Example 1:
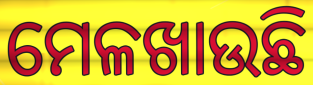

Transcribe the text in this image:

ମେଳଖାଉଛି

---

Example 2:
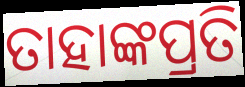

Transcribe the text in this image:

ତାହାଙ୍କପ୍ରତି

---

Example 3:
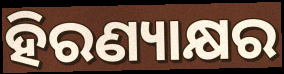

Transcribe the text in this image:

ହିରଣ୍ୟାକ୍ଷର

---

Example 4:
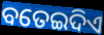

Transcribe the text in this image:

ବତେଇଦିଏ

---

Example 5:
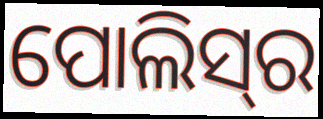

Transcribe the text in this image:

ପୋଲିସ୍‍ର